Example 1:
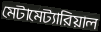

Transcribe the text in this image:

মেটামেট্যারিয়াল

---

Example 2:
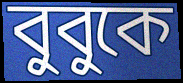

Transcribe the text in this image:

বুবুকে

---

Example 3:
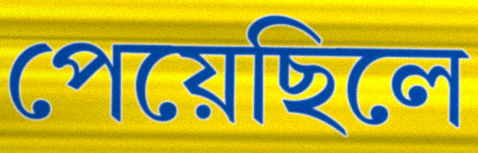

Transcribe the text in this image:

পেয়েছিলে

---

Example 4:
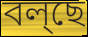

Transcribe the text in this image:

বল্ছে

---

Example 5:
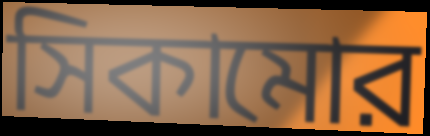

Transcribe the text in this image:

সিকামোর